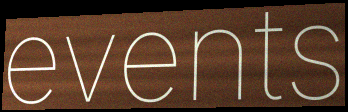
events